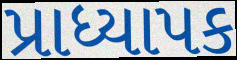
પ્રાધ્યાપક